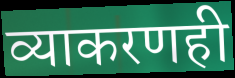
व्याकरणही